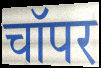
चॉपर